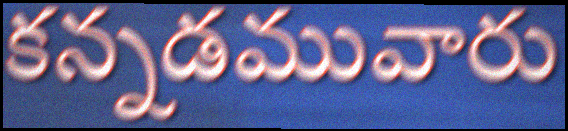
కన్నడమువారు